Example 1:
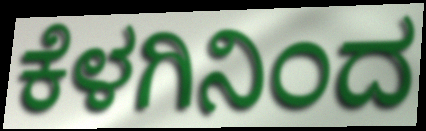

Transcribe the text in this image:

ಕೆಳಗಿನಿಂದ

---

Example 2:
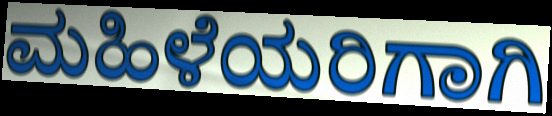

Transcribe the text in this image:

ಮಹಿಳೆಯರಿಗಾಗಿ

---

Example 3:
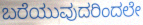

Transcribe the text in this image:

ಬರೆಯುವುದರಿಂದಲೇ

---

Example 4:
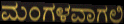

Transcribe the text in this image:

ಮಂಗಳವಾಗಲಿ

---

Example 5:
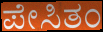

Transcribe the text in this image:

ಪೇಸಿತಂ